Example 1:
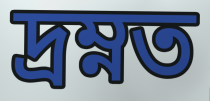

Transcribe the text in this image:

দ্রম্নত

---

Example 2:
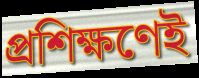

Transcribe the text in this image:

প্রশিক্ষণেই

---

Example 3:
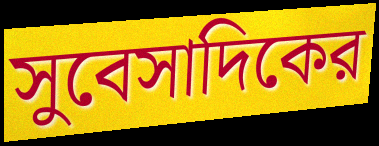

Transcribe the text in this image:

সুবেসাদিকের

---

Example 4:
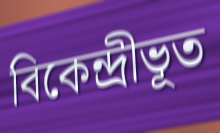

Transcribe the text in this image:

বিকেন্দ্রীভূত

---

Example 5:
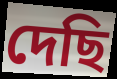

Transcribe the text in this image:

দেছি